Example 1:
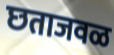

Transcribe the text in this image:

छताजवळ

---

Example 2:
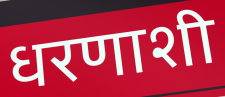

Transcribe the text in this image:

धरणाशी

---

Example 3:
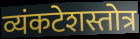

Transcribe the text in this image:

व्यंकटेशस्तोत्र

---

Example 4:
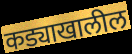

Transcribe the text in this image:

कड्याखालील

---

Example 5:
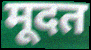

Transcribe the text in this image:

मूदत